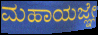
ಮಹಾಯಜ್ಞೇ